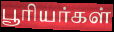
பூரியர்கள்